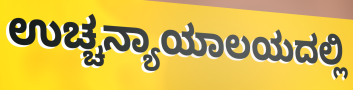
ಉಚ್ಚನ್ಯಾಯಾಲಯದಲ್ಲಿ